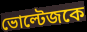
ভোল্টেজকে